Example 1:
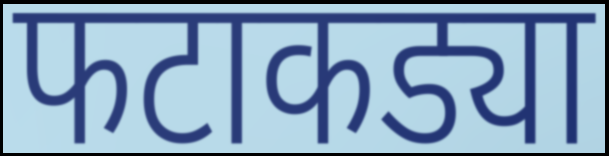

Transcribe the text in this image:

फटाकड्या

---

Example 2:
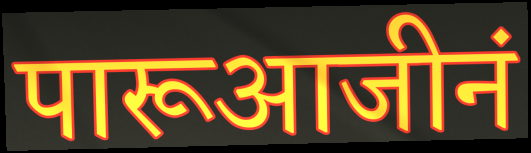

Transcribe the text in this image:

पारूआजीनं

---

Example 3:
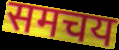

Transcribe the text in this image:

समचय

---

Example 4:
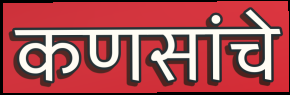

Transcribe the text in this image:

कणसांचे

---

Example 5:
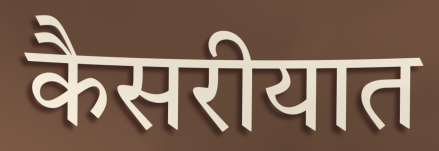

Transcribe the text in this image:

कैसरीयात